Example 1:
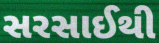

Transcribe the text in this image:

સરસાઈથી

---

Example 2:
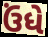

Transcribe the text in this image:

ઉંધે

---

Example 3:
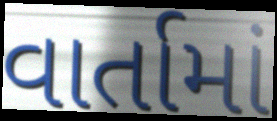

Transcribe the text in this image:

વાર્તામાં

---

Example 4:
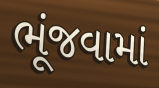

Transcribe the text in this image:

ભૂંજવામાં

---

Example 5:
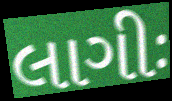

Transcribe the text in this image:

લાગીઃ